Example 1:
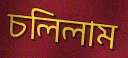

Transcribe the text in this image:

চলিলাম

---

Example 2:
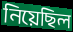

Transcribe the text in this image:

নিয়েছিল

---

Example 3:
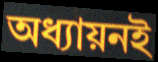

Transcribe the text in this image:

অধ্যায়নই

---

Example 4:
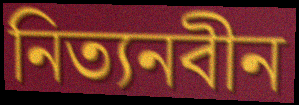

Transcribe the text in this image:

নিত্যনবীন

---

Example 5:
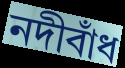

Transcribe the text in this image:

নদীবাঁধ